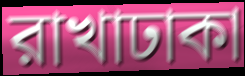
রাখাঢাকা